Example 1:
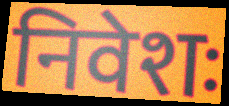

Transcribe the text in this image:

निवेशः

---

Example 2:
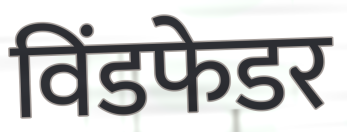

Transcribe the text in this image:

विंडफेडर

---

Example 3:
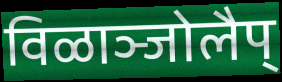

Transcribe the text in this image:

विळाञ्जोलैप्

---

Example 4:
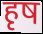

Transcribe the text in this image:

हृष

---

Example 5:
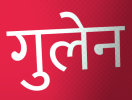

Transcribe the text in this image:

गुलेन